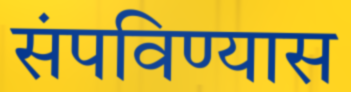
संपविण्यास